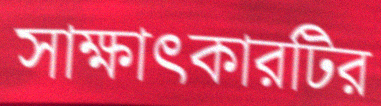
সাক্ষাৎকারটির